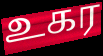
உகர